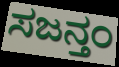
ಸಜನ್ತಂ